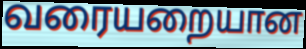
வரையறையான